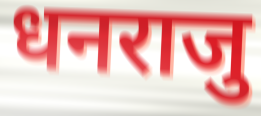
धनराजु